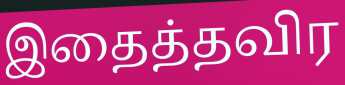
இதைத்தவிர